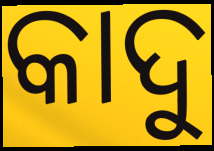
କାଦୁ